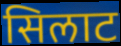
सिलाट